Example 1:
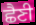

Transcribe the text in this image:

ਛੈਣੀ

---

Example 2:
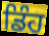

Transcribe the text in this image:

ਡਿੰਹ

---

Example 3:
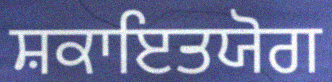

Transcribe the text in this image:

ਸ਼ਕਾਇਤਯੋਗ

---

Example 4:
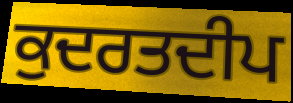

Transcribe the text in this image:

ਕੁਦਰਤਦੀਪ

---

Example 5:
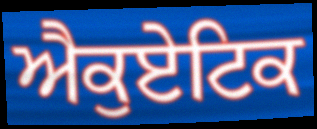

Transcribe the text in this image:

ਐਕੁਏਟਿਕ